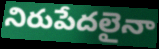
నిరుపేదలైనా